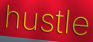
hustle